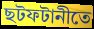
ছটফটানীতে